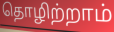
தொழிற்றாம்